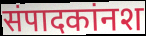
संपादकांनश